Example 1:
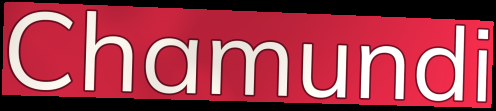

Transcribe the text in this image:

Chamundi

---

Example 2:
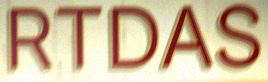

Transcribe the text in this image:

RTDAS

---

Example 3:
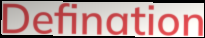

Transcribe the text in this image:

Defination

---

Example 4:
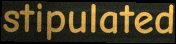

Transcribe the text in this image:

stipulated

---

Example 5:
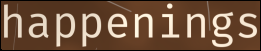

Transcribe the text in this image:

happenings